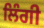
ਲਿੰਗੀ